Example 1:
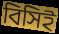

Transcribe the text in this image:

বিসিই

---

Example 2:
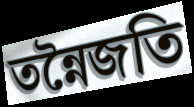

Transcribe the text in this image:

তন্নৈজতি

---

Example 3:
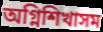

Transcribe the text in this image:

অগ্নিশিখাসম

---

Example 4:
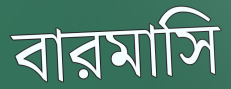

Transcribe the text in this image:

বারমাসি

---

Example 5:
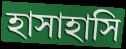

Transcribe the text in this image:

হাসাহাসি